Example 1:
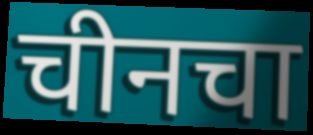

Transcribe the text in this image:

चीनचा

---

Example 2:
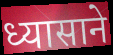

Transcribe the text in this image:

ध्यासाने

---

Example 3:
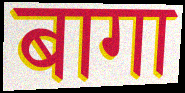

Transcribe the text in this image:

बागा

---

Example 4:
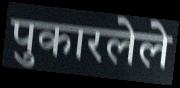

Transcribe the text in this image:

पुकारलेले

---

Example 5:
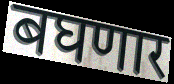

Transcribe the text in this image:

बघणार